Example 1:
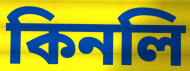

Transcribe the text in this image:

কিনলি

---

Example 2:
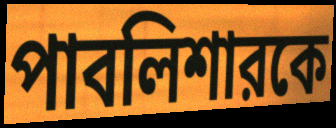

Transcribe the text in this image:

পাবলিশারকে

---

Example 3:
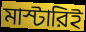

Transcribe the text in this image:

মাস্টারিই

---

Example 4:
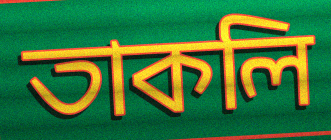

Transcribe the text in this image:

তাকলি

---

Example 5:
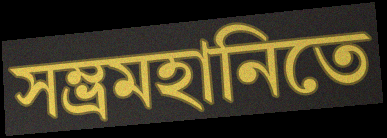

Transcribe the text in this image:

সম্ভ্রমহানিতে